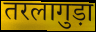
तरलागुड़ा